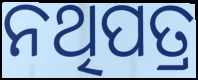
ନଥିପତ୍ର